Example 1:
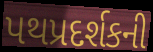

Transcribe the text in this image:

પથપ્રદર્શકની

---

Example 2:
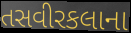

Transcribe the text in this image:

તસવીરકલાના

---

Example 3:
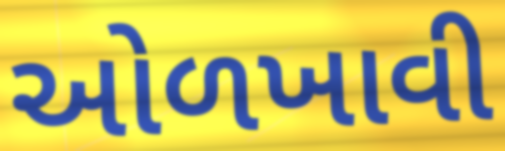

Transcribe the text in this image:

ઓળખાવી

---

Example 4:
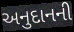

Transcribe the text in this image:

અનુદાનની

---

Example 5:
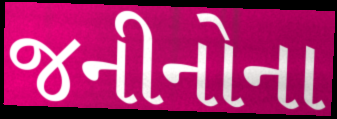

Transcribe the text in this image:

જનીનોના